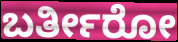
ಬರ್ತೀರೋ